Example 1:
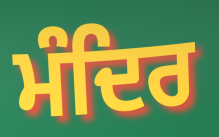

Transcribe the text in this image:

ਮੰਦਿਰ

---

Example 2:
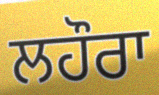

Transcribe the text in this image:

ਲਹੌਰਾ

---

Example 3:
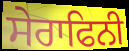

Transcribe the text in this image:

ਸੇਰਾਫਿਨੀ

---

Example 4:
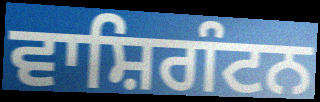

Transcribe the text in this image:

ਵਾਸ਼ਿਗੰਟਨ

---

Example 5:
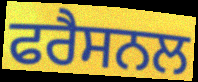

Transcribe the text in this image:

ਫਰੈਸਨਲ